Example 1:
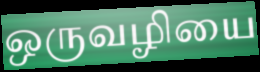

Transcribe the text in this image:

ஒருவழியை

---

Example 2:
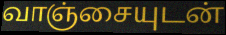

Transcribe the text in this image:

வாஞ்சையுடன்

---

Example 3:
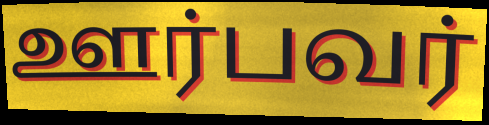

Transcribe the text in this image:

ஊர்பவர்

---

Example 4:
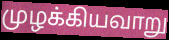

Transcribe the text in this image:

முழக்கியவாறு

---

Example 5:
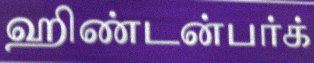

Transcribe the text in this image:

ஹிண்டன்பர்க்